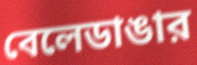
বেলেডাঙার